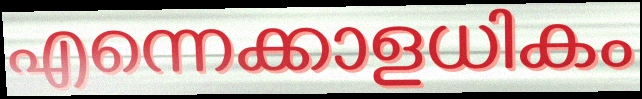
എന്നെക്കാളധികം